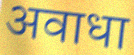
अवाधा